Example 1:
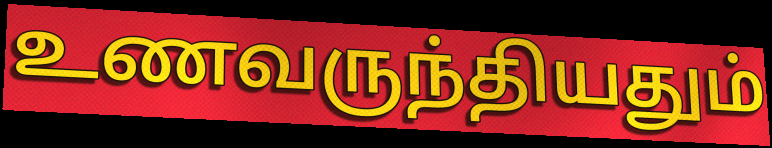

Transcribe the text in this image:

உணவருந்தியதும்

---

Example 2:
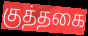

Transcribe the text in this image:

குத்தகை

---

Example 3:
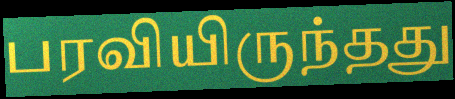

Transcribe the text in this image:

பரவியிருந்தது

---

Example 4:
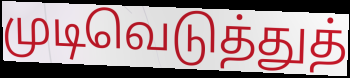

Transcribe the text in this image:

முடிவெடுத்துத்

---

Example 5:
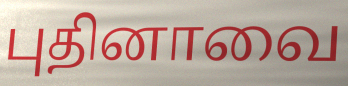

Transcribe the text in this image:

புதினாவை